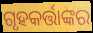
ଗୃହକର୍ତ୍ତାଙ୍କର